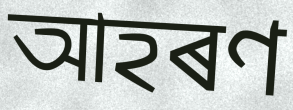
আহৰণ